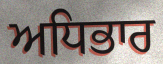
ਅਧਿਭਾਰ